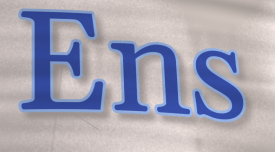
Ens